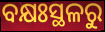
ବକ୍ଷଃସ୍ଥଳରୁ